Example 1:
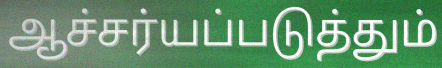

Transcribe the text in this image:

ஆச்சர்யப்படுத்தும்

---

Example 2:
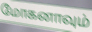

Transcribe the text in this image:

மோகனாவும்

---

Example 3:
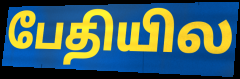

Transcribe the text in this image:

பேதியில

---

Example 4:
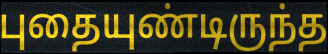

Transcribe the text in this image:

புதையுண்டிருந்த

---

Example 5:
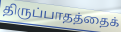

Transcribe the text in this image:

திருப்பாதத்தைக்